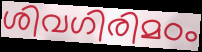
ശിവഗിരിമഠം